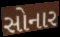
સોનાર